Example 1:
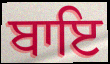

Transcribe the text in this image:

ਬਾਇ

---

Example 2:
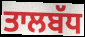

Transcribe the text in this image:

ਤਾਲਬੱਧ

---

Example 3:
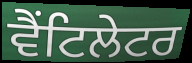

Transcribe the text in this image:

ਵੈਂਟਿਲੇਟਰ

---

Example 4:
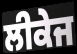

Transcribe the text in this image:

ਲੀਕੇਜ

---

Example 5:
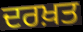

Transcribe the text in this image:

ਦਰਖ਼ਤ